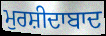
ਮੁਰਸ਼ੀਦਾਬਾਦ